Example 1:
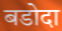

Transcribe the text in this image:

बडोदा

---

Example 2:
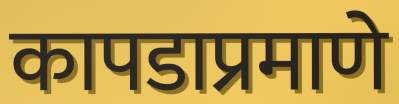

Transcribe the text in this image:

कापडाप्रमाणे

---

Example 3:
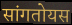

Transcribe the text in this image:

सांगतोयस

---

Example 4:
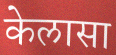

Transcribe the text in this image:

केलासा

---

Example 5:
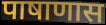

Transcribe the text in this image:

पाषाणास